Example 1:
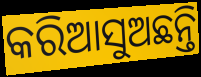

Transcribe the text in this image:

କରିଆସୁଅଛନ୍ତି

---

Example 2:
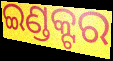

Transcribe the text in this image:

ଇଣ୍ଡକ୍ଟର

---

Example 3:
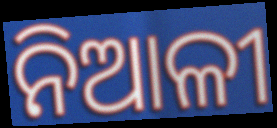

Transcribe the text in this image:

ନିଆଳୀ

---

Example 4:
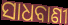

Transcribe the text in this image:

ସାଧବାଣୀ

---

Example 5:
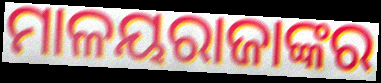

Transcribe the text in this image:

ମାଳୟରାଜାଙ୍କର